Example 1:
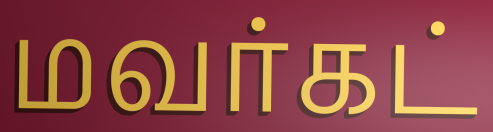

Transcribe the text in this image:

மவர்கட்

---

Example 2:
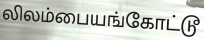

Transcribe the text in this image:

லிலம்பையங்கோட்டூ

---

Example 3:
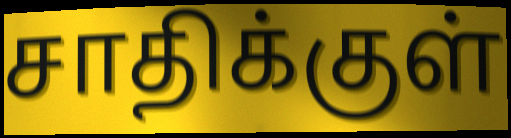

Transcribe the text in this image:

சாதிக்குள்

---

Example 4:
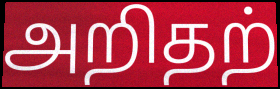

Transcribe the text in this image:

அறிதற்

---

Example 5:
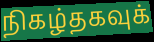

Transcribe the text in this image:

நிகழ்தகவுக்